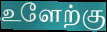
உளேற்கு